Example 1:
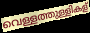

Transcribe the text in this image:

വെള്ളത്തുള്ളികള്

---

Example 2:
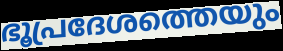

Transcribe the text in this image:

ഭൂപ്രദേശത്തെയും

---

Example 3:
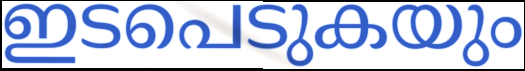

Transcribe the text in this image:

ഇടപെടുകയും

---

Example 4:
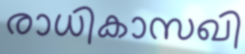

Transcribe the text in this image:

രാധികാസഖി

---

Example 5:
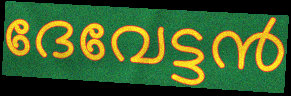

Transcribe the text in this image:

ദേവേട്ടൻ